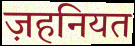
ज़हनियत